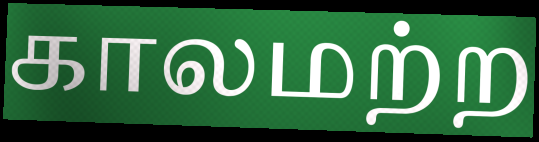
காலமற்ற